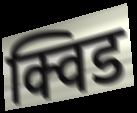
क्विड